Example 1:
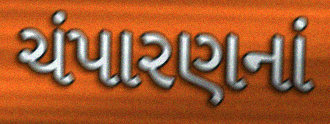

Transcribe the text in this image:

ચંપારણનાં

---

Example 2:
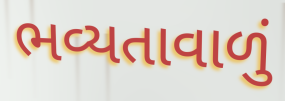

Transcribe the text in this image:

ભવ્યતાવાળું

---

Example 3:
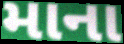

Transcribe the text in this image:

માના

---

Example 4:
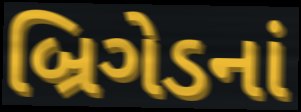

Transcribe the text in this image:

બ્રિગેડનાં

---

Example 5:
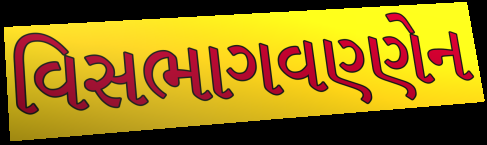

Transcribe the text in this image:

વિસભાગવણ્ણેન